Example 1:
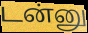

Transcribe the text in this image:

டன்னு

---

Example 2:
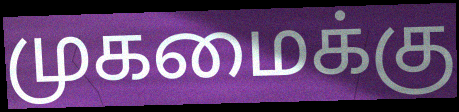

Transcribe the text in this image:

முகமைக்கு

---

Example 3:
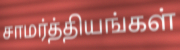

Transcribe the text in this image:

சாமர்த்தியங்கள்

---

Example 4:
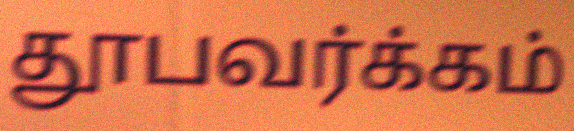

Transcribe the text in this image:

தூபவர்க்கம்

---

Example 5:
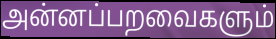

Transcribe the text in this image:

அன்னப்பறவைகளும்